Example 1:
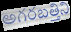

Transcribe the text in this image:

అగరబత్తిని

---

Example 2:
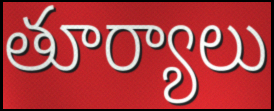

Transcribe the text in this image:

తూర్యాలు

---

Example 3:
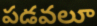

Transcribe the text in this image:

పడవలూ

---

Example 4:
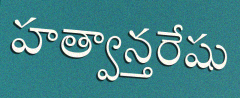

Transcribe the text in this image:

హత్వాన్తరేషు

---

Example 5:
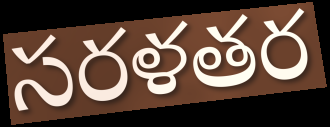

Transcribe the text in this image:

సరళతర